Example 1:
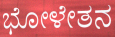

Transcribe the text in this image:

ಭೋಳೇತನ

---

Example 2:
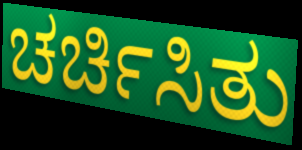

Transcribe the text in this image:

ಚರ್ಚಿಸಿತು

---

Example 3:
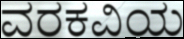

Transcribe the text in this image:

ವರಕವಿಯ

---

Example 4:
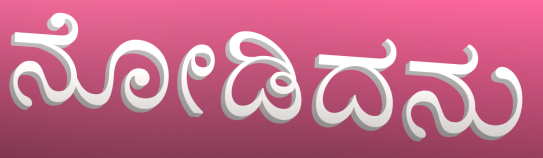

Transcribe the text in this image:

ನೋಡಿದನು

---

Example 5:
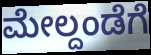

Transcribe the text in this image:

ಮೇಲ್ದಂಡೆಗೆ